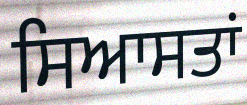
ਸਿਆਸਤਾਂ